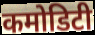
कमोडिटी